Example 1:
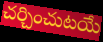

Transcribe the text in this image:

చర్చించుటయే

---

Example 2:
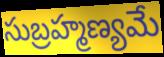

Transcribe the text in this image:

సుబ్రహ్మణ్యమే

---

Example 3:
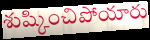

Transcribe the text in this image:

శుష్కించిపోయారు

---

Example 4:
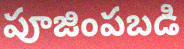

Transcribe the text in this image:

పూజింపబడి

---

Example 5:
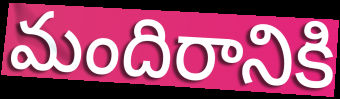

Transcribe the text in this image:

మందిరానికి